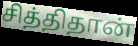
சித்திதான்